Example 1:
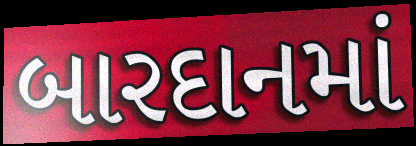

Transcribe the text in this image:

બારદાનમાં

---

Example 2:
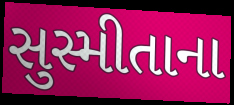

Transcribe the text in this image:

સુસ્મીતાના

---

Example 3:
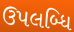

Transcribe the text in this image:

ઉપલબ્ધિ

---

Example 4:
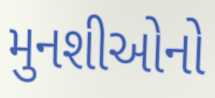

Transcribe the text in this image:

મુનશીઓનો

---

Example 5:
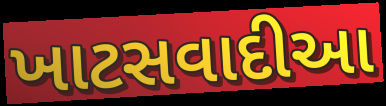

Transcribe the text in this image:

ખાટસવાદીઆ